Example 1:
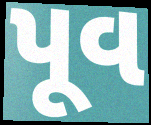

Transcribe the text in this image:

પૂવ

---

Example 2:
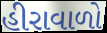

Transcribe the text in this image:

હીરાવાળો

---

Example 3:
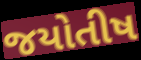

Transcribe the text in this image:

જયોતીષ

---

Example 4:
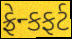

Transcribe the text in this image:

ફ્રેન્કફર્ટ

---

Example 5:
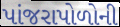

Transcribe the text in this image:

પાંજરાપોળોની